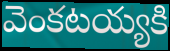
వెంకటయ్యకి